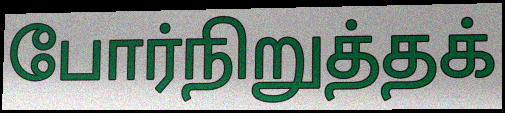
போர்நிறுத்தக்